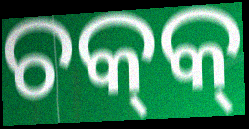
ଚକ୍‌କ୍